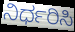
ನಿರ್ಧರಿಸಿ